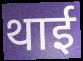
थाई